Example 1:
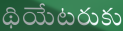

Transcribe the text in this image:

థియేటరుకు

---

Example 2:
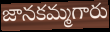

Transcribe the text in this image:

జానకమ్మగారు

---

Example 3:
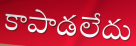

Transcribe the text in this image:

కాపాడలేదు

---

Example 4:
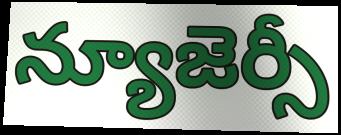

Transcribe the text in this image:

న్యూజెర్సీ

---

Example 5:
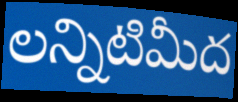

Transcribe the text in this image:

లన్నిటిమీద